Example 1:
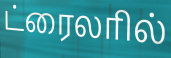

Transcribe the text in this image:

ட்ரைலரில்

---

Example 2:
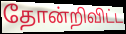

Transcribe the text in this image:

தோன்றிவிட்ட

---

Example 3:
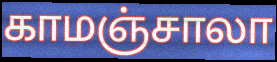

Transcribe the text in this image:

காமஞ்சாலா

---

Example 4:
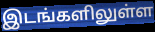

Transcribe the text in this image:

இடங்களிலுள்ள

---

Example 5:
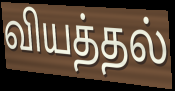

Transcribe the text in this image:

வியத்தல்